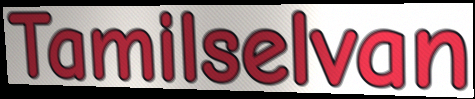
Tamilselvan